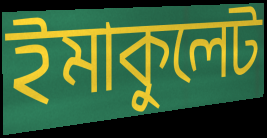
ইমাকুলেট